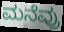
ಮನೆವ್ರು